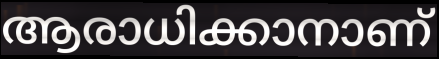
ആരാധിക്കാനാണ്